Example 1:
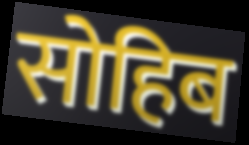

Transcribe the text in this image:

सोहिब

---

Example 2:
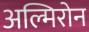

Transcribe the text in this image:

अल्मिरोन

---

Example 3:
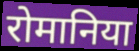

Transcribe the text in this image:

रोमानिया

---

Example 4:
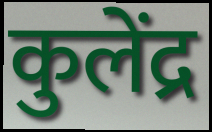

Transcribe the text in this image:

कुलेंद्र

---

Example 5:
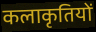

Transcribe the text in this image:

कलाकृतियों